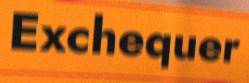
Exchequer